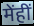
मेंहीं